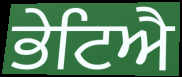
ਭੇਟਿਐ